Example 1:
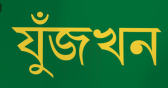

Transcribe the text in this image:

যুঁজখন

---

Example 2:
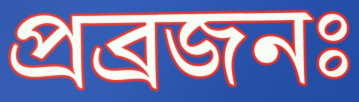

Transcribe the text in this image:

প্ৰব্ৰজনঃ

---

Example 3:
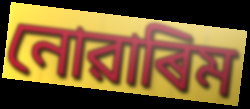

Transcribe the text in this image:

নোৱাৰিম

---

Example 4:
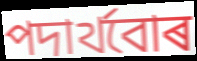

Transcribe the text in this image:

পদাৰ্থবোৰ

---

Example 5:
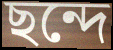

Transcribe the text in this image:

ছন্দে